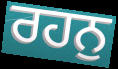
ਰਹਨੁ